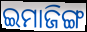
ଇମାଜିଙ୍ଗ